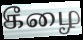
கீழை